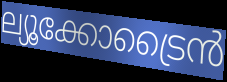
ല്യൂക്കോട്രൈൻ